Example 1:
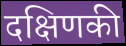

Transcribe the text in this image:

दक्षिणकी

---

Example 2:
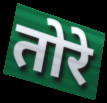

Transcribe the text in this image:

तोरे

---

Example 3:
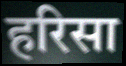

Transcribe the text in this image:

हरिसा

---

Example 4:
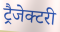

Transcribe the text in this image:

ट्रैजेक्टरी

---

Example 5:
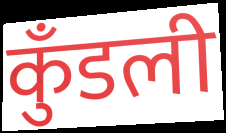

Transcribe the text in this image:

कुँडली